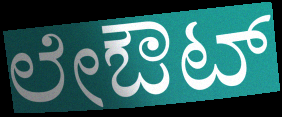
ಲೇಔಟ್